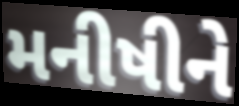
મનીષીને